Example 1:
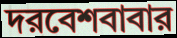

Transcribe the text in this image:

দরবেশবাবার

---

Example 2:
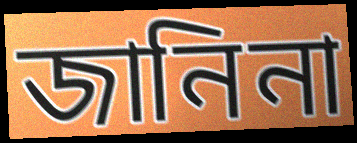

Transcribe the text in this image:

জানিনা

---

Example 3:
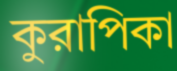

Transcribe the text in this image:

কুরাপিকা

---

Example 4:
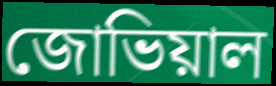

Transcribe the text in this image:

জোভিয়াল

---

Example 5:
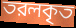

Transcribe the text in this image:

তরলকৃত